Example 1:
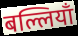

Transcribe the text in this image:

बल्लियाँ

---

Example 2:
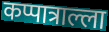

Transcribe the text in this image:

कप्पात्राल्ला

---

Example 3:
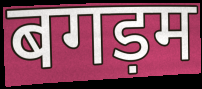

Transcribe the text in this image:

बगड़म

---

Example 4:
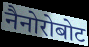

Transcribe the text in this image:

नैनोरोबोट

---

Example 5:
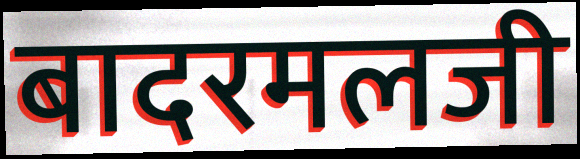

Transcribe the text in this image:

बादरमलजी